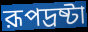
রূপদ্রষ্টা